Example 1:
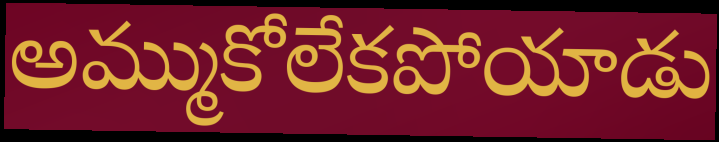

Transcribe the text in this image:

అమ్ముకోలేకపోయాడు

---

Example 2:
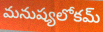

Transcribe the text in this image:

మనుష్యలోకమ్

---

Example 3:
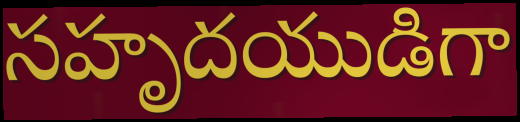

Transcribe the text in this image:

సహృదయుడిగా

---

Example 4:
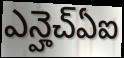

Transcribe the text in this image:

ఎన్హెచ్ఏఐ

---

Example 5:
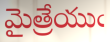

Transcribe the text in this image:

మైత్రేయుఁ